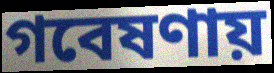
গবেষণায়